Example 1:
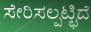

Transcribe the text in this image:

ಸೇರಿಸಲ್ಪಟ್ಟಿದೆ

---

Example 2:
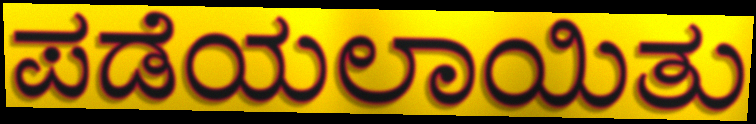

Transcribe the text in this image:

ಪಡೆಯಲಾಯಿತು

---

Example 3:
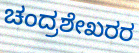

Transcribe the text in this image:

ಚಂದ್ರಶೇಖರರ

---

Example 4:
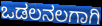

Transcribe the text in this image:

ಒಡಲನಲಗಾಗಿ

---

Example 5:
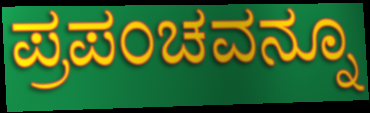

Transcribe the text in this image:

ಪ್ರಪಂಚವನ್ನೂ